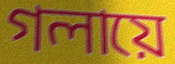
গলায়ে